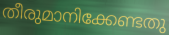
തീരുമാനിക്കേണ്ടതു